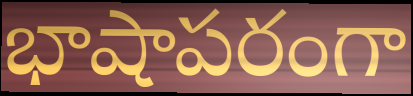
భాషాపరంగా